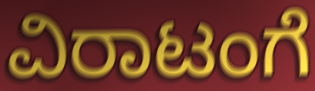
ವಿರಾಟಂಗೆ